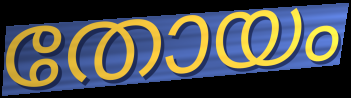
തോയം